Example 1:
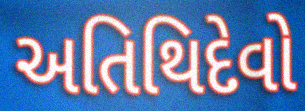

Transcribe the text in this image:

અતિથિદેવો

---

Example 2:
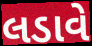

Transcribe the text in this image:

લડાવે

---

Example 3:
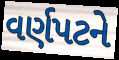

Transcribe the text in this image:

વર્ણપટને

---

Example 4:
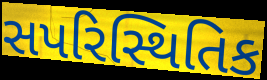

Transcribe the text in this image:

સપરિસ્થિતિક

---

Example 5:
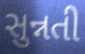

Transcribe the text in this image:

સુન્નતી